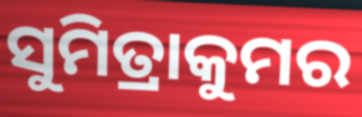
ସୁମିତ୍ରାକୁମର